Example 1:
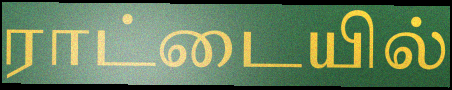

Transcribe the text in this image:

ராட்டையில்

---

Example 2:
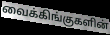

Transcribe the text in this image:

வைக்கிங்குகளின்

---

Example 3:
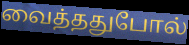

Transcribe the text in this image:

வைத்ததுபோல்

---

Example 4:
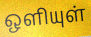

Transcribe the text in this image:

ஒளியுள்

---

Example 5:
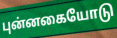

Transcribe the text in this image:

புன்னகையோடு